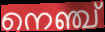
നെഞ്ച്